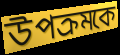
উপক্রমকে